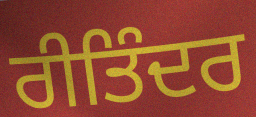
ਰੀਤਿੰਦਰ